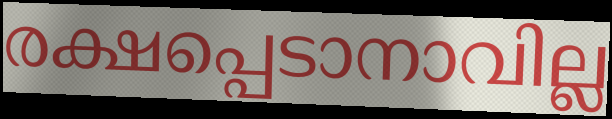
രക്ഷപ്പെടാനാവില്ല